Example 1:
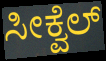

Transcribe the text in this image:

ಸೀಕ್ವೆಲ್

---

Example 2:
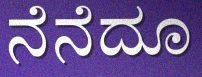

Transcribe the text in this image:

ನೆನೆದೂ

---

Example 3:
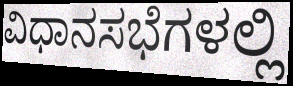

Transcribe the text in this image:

ವಿಧಾನಸಭೆಗಳಲ್ಲಿ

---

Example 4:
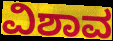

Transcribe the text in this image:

ವಿಶಾವ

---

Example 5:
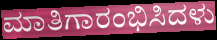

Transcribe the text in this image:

ಮಾತಿಗಾರಂಭಿಸಿದಳು